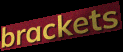
brackets